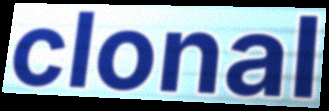
clonal